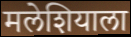
मलेशियाला